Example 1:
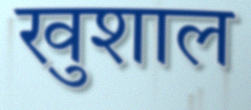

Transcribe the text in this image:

खुशाल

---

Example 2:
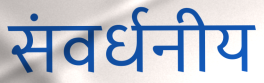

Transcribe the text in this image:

संवर्धनीय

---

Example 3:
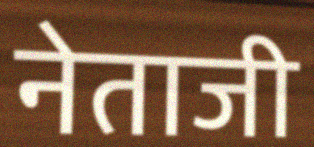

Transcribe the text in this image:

नेताजी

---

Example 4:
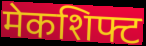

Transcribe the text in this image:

मेकशिफ्ट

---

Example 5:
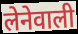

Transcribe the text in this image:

लेनेवाली